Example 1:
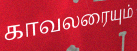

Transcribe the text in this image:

காவலரையும்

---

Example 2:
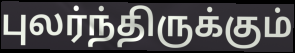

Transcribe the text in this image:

புலர்ந்திருக்கும்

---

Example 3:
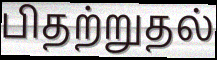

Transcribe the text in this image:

பிதற்றுதல்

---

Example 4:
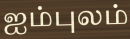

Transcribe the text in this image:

ஐம்புலம்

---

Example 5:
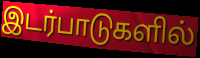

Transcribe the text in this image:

இடர்பாடுகளில்